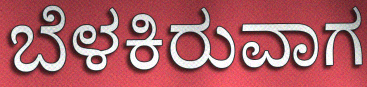
ಬೆಳಕಿರುವಾಗ